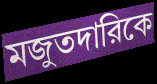
মজুতদারিকে